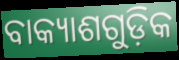
ବାକ୍ୟାଶଗୁଡ଼ିକ